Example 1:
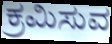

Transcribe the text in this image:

ಕ್ರಮಿಸುವ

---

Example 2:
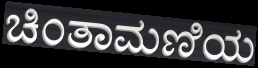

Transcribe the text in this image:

ಚಿಂತಾಮಣಿಯ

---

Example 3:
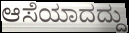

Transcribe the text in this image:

ಆಸೆಯಾದದ್ದು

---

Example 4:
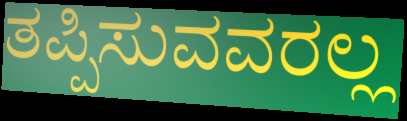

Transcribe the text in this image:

ತಪ್ಪಿಸುವವರಲ್ಲ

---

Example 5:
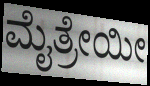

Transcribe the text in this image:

ಮೈತ್ರೇಯೀ